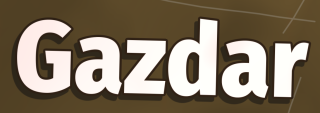
Gazdar